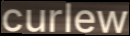
curlew